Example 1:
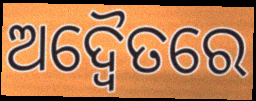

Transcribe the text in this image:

ଅଦ୍ୱୈତରେ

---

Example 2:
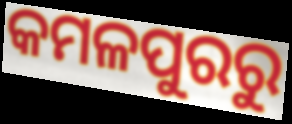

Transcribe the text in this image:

କମଳପୁରରୁ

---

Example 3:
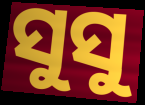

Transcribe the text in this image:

ସୁସୁ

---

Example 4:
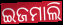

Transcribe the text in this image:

ଇଜମାଲି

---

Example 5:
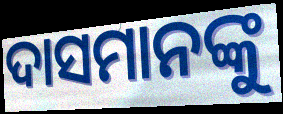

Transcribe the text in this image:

ଦାସମାନଙ୍କୁ